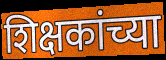
शिक्षकांच्‍या